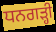
ਧਨਗੜ੍ਹੀ